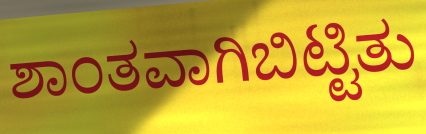
ಶಾಂತವಾಗಿಬಿಟ್ಟಿತು